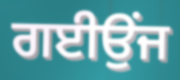
ਗਈਉਂਜ